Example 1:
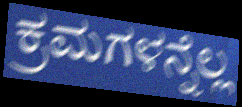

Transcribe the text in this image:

ಕ್ರಮಗಳನ್ನೆಲ್ಲ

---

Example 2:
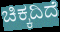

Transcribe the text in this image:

ಚಿಕ್ಕದಿದೆ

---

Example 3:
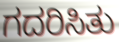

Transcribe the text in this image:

ಗದರಿಸಿತು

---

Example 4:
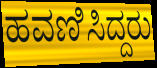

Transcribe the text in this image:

ಹವಣಿಸಿದ್ದರು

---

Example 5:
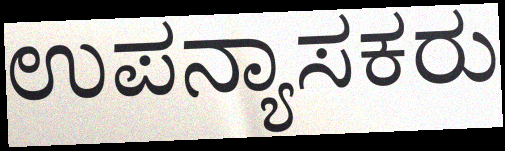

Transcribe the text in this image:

ಉಪನ್ಯಾಸಕರು